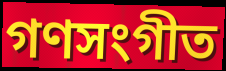
গণসংগীত